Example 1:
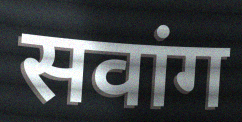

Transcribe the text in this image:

सवांग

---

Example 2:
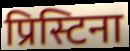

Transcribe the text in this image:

प्रिस्टिना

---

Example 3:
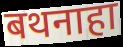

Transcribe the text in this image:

बथनाहा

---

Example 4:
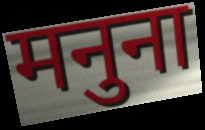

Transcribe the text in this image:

मनुना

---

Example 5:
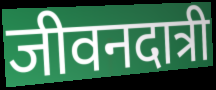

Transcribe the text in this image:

जीवनदात्री